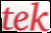
tek